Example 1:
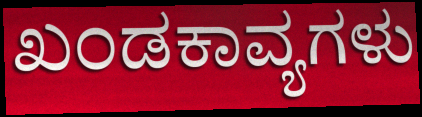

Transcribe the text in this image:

ಖಂಡಕಾವ್ಯಗಳು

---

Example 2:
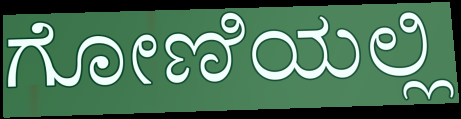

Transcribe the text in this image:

ಗೋಣಿಯಲ್ಲಿ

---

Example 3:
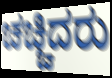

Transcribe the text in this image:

ಚಚ್ಚಿದರು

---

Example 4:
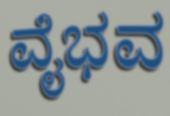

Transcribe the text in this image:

ವೈಭವ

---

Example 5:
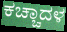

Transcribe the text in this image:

ಕಚ್ಚಾದಳ